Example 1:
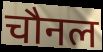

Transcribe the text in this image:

चौनल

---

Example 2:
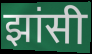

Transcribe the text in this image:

झांसी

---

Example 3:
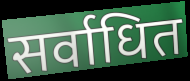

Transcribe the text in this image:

सर्वाधित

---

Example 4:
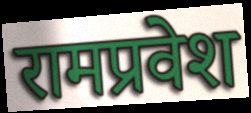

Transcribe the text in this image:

रामप्रवेश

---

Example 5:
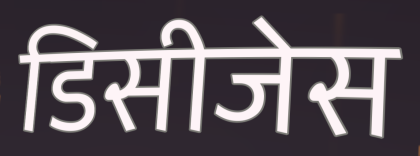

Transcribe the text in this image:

डिसीजेस